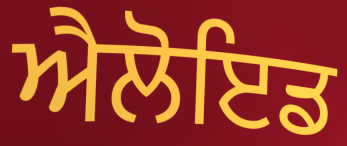
ਐਲੋਇਡ